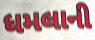
ધમલાની